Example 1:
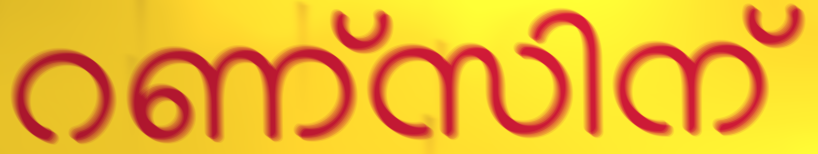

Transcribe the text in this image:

റണ്സിന്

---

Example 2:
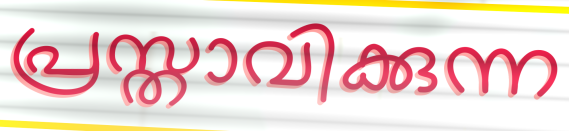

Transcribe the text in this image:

പ്രസ്താവിക്കുന്ന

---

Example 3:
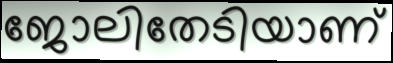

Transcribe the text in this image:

ജോലിതേടിയാണ്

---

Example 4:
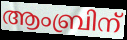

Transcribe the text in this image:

ആംബ്രിന്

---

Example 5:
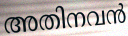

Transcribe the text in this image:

അതിനവൻ